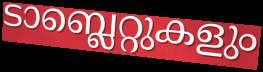
ടാബ്ലെറ്റുകളും